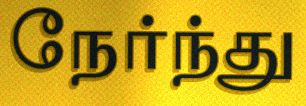
நேர்ந்து